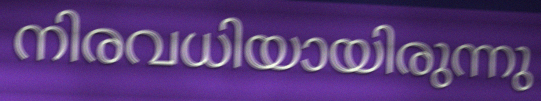
നിരവധിയായിരുന്നു